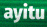
ayitu